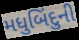
મધુબિંદુની